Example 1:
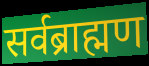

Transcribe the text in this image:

सर्वब्राह्मण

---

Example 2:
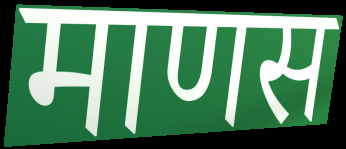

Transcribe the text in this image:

माणस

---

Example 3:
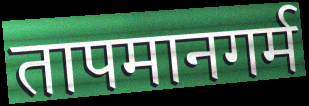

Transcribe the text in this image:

तापमानगर्म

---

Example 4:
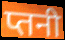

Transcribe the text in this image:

प्तनी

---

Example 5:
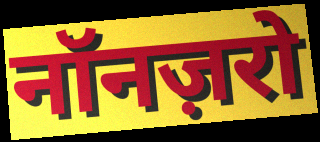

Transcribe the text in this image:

नॉनज़रो